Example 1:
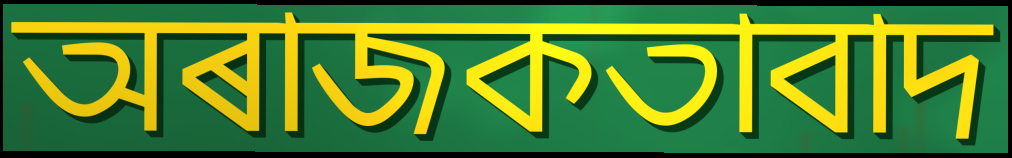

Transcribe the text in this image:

অৰাজকতাবাদ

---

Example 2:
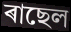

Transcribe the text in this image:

ৰাছেল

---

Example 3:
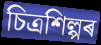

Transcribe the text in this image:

চিত্ৰশিল্পৰ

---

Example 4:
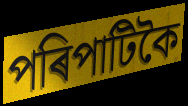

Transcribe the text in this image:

পৰিপাটিকৈ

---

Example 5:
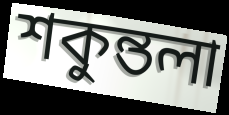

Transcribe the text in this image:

শকুন্তলা